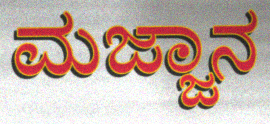
ಮಜ್ಜಾನ